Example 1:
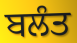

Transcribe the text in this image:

ਬਲੰਤ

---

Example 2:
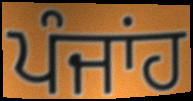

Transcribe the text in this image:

ਪੰਜਾਂਹ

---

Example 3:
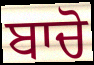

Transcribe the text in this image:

ਬਾਚੋ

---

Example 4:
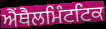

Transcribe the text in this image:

ਐਂਥੈਲਮਿੰਟਟਿਕ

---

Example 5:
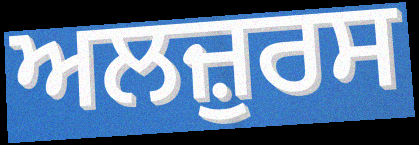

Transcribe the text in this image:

ਅਲਜ਼ੁਰਸ